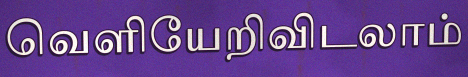
வெளியேறிவிடலாம்